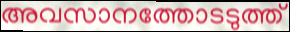
അവസാനത്തോടടുത്ത്